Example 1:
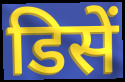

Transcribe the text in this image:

डिसें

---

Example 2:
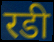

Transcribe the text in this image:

रडी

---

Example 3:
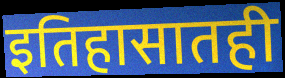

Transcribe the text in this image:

इतिहासातही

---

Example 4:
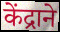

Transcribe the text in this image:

केंद्राने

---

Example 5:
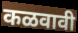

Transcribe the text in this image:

कळवावी